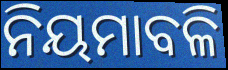
ନିୟମାବଳି